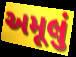
અમૂલું